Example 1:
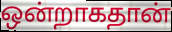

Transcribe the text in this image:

ஒன்றாகதான்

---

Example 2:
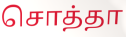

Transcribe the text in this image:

சொத்தா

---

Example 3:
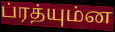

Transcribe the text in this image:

ப்ரத்யும்ன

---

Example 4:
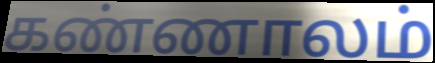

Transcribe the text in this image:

கண்ணாலம்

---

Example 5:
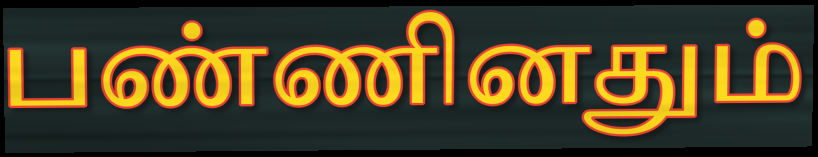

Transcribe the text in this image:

பண்ணினதும்